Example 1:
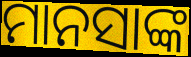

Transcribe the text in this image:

ମାନସାଙ୍କ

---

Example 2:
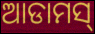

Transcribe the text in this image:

ଆଡାମସ୍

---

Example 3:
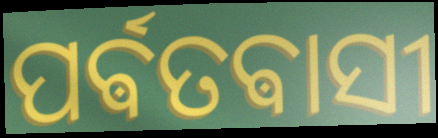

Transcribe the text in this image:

ପର୍ଵତଵାସୀ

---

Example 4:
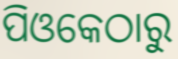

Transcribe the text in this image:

ପିଓକେଠାରୁ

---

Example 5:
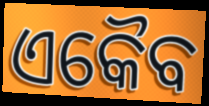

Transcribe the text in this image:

ଏକୈବ